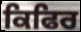
ਕਿਫਿਰ